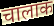
चालाक